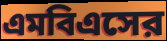
এমবিএসের